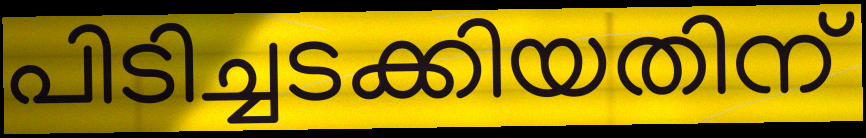
പിടിച്ചടക്കിയതിന്